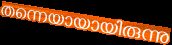
തന്നെയായായിരുന്നു